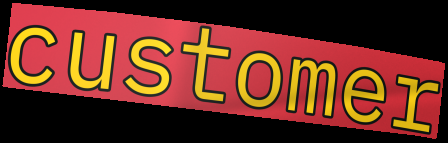
customer